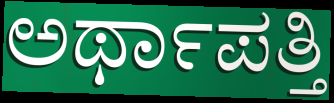
ಅರ್ಥಾಪತ್ತಿ